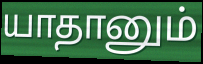
யாதானும்